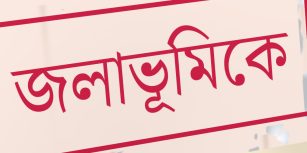
জলাভূমিকে